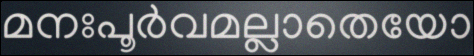
മനഃപൂർവമല്ലാതെയോ